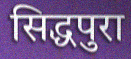
सिद्धपुरा